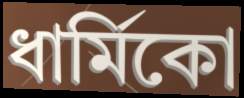
ধার্মিকো